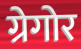
ग्रेगोर